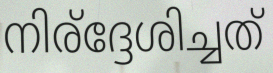
നിര്ദ്ദേശിച്ചത്